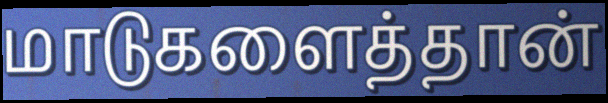
மாடுகளைத்தான்